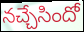
నచ్చేసిందో